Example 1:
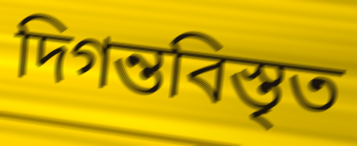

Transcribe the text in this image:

দিগন্তবিস্তৃত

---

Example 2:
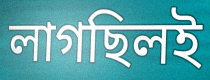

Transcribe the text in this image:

লাগছিলই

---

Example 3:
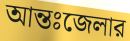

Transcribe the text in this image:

আন্তঃজেলার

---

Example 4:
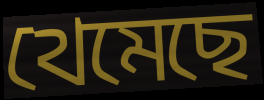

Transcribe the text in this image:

থেমেছে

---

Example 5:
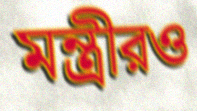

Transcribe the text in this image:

মন্ত্রীরও